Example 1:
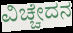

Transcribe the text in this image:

ವಿಚ್ಚೇದನ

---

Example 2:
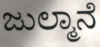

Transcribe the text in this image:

ಜುಲ್ಮಾನೆ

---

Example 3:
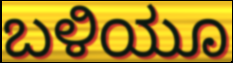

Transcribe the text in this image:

ಬಳಿಯೂ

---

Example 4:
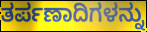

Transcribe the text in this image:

ತರ್ಪಣಾದಿಗಳನ್ನು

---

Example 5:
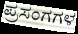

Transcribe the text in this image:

ಪ್ರಸಂಗಗಳ